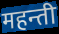
महन्ती